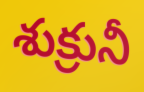
శుక్రునీ